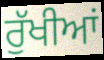
ਰੁੱਖੀਆਂ